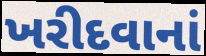
ખરીદવાનાં